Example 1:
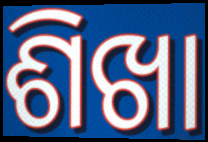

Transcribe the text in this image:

ଶିଖା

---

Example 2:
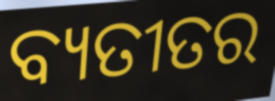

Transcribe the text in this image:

ବ୍ୟତୀତର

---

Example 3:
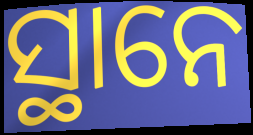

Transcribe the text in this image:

ସ୍ଥାନେ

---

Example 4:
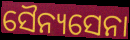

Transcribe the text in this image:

ସୈନ୍ୟସେନା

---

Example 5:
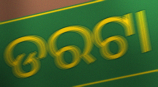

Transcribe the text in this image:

ଡରଟା